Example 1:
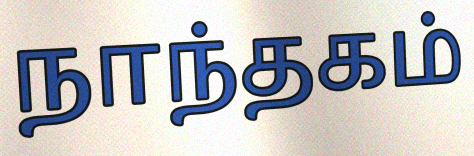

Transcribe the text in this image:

நாந்தகம்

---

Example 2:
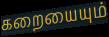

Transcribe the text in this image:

கறையையும்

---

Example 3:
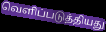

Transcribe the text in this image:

வெளிப்படுத்தியது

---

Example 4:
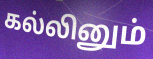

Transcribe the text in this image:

கல்லினும்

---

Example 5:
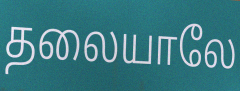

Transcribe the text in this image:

தலையாலே